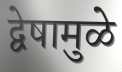
द्वेषामुळे